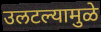
उलटल्यामुळे